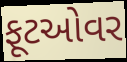
ફૂટઓવર